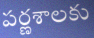
పర్ణశాలకు